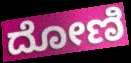
ದೋಣಿ